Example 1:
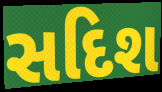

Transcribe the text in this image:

સદિશ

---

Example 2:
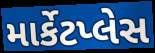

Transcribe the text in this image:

માર્કેટપ્લેસ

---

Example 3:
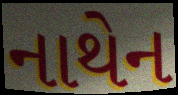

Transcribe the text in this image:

નાથેન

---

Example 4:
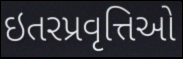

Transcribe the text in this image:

ઇતરપ્રવૃત્તિઓ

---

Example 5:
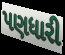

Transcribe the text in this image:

પણધારી